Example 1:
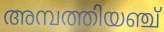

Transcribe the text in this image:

അമ്പത്തിയഞ്ച്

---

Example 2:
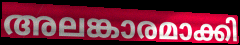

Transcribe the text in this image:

അലങ്കാരമാക്കി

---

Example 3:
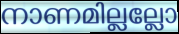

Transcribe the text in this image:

നാണമില്ലല്ലോ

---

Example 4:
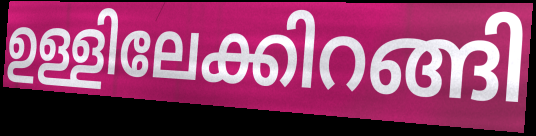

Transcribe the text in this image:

ഉള്ളിലേക്കിറങ്ങി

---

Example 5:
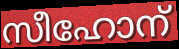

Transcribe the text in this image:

സീഹോന്